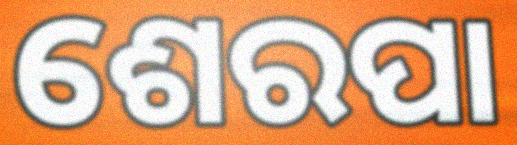
ଶେରପା